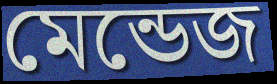
মেন্ডেজ